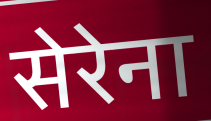
सेरेना